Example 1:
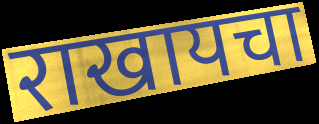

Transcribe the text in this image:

राखायचा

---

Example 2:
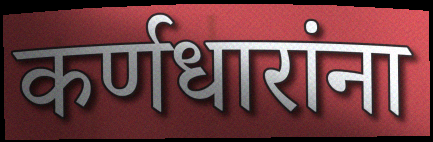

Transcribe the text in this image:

कर्णधारांना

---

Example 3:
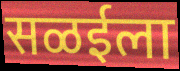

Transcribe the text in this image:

सळईला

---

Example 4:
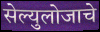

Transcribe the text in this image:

सेल्युलोजाचे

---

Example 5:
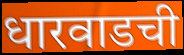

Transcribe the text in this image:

धारवाडची